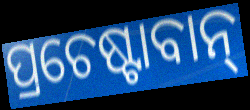
ପ୍ରଚେଷ୍ଟାବାନ୍